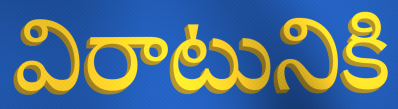
విరాటునికి